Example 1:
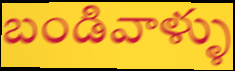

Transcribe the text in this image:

బండివాళ్ళు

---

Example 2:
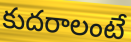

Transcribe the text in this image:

కుదరాలంటే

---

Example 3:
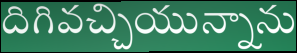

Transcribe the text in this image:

దిగివచ్చియున్నాను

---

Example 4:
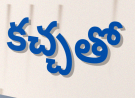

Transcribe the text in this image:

కచ్చతో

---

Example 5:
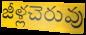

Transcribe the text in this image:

జీళ్లచెరువు